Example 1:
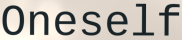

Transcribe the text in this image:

Oneself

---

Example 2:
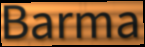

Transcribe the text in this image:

Barma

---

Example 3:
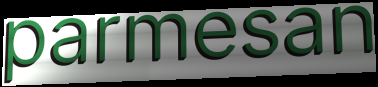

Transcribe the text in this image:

parmesan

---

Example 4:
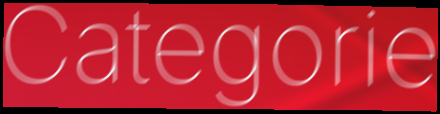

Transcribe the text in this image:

Categorie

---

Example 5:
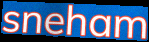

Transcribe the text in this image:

sneham